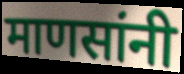
माणसांनी